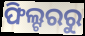
ଫିଲ୍ଟରରୁ